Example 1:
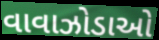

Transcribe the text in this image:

વાવાઝોડાઓ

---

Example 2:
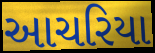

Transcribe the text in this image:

આચરિયા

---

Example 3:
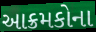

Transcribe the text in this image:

આક્રમકોના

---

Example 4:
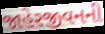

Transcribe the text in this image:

જાહેરજીવનની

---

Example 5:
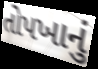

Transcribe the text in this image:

તોપખાનું